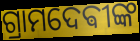
ଗ୍ରାମଦେଵୀଙ୍କ